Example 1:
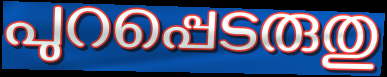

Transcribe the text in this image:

പുറപ്പെടരുതു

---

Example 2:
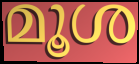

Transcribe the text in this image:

മൂശ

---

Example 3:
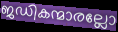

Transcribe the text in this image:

ജഡികന്മാരല്ലോ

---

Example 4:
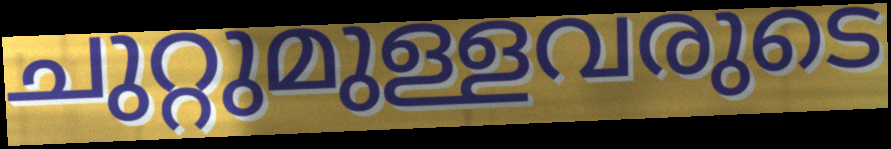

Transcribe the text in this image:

ചുറ്റുമുള്ളവരുടെ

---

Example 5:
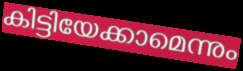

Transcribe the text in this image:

കിട്ടിയേക്കാമെന്നും